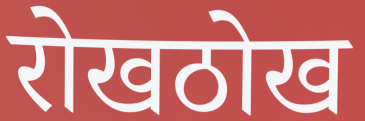
रोखठोख